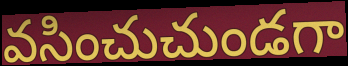
వసించుచుండగా